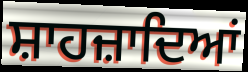
ਸ਼ਾਹਜ਼ਾਦਿਆਂ